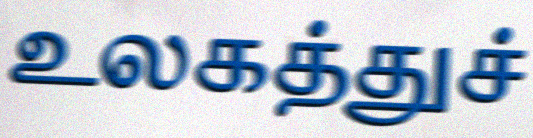
உலகத்துச்